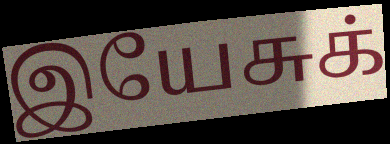
இயேசுக்